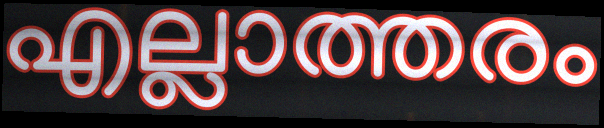
എല്ലാത്തരം